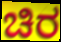
ಚಿರ